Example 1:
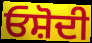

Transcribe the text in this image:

ਓਸ਼ੋਦੀ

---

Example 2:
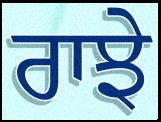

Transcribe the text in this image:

ਰਾਝੇ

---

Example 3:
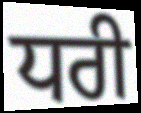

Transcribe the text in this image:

ਧਰੀ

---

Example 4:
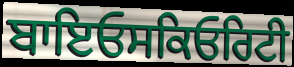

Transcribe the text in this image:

ਬਾਇਓਸਕਿਓਰਿਟੀ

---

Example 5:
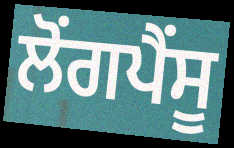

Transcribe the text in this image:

ਲੋਂਗਪੈਂਸੂ